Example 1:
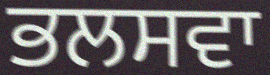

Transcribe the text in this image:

ਭਲਸਵਾ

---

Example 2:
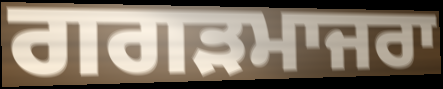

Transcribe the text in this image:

ਗਗੜਮਾਜਰਾ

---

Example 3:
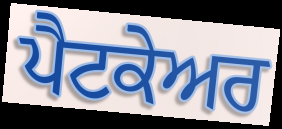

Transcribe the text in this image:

ਪੈਟਕੇਅਰ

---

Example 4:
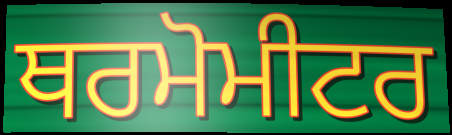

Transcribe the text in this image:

ਥਰਮੋਮੀਟਰ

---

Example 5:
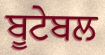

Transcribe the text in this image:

ਬੂਟੇਬਲ